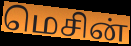
மெசின்